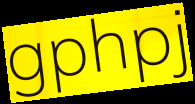
gphpj